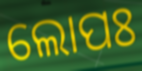
ଲୋପଃ